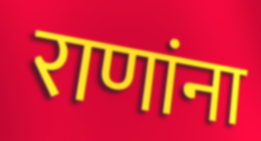
राणांना